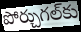
పోర్చుగల్‌కు